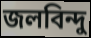
জলবিন্দু